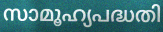
സാമൂഹ്യപദ്ധതി